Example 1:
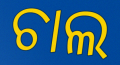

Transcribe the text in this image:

ଚାଲ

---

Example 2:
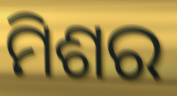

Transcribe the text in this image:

ମିଶର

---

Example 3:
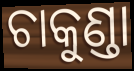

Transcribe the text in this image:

ଚାକୁଣ୍ଡା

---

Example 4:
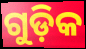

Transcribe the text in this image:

ଗୁଡ଼ିକ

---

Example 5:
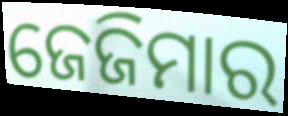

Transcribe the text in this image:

ଜେଜିମାର